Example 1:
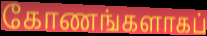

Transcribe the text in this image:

கோணங்களாகப்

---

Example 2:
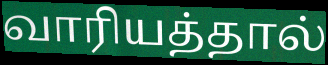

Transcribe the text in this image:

வாரியத்தால்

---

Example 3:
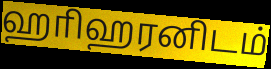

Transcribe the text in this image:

ஹரிஹரனிடம்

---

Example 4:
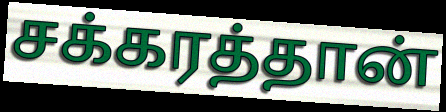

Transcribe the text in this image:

சக்கரத்தான்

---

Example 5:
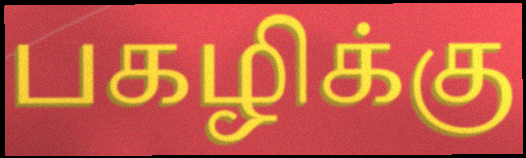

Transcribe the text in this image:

பகழிக்கு